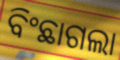
ବିଂଛାଗଲା